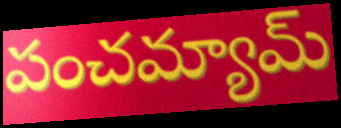
పంచమ్యామ్